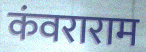
कंवराराम